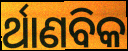
ର୍ଥାଣବିକ